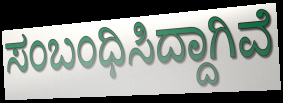
ಸಂಬಂಧಿಸಿದ್ದಾಗಿವೆ